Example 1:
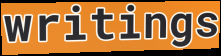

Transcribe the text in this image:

writings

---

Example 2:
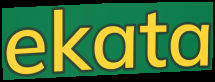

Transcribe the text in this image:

ekata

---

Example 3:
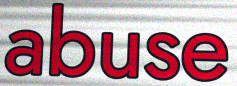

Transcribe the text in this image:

abuse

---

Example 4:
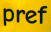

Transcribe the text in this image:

pref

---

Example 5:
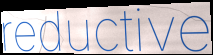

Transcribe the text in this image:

reductive